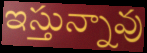
ఇస్తున్నావు